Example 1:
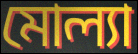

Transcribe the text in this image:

মোল্যা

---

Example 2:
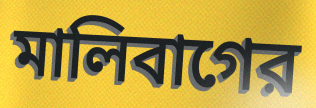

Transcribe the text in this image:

মালিবাগের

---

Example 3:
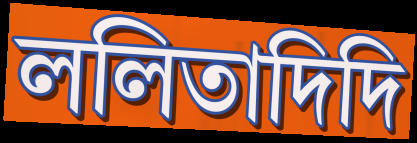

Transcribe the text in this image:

ললিতাদিদি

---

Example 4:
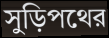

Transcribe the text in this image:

সুড়িপথের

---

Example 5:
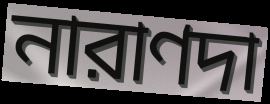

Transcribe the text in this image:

নারাণদা